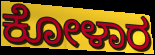
ಕೋಳಾರ